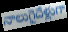
నాలుగైదేళ్లుగా